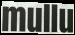
mullu